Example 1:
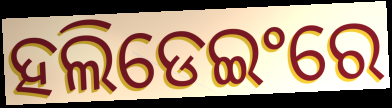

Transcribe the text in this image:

ହଲିଡେଇଂରେ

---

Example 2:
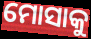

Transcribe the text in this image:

ମୋସାକୁ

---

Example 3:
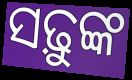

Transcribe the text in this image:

ସଢ଼ୁଙ୍କ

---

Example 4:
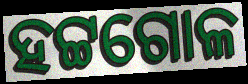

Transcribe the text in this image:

ହଟ୍ଟଗୋଳ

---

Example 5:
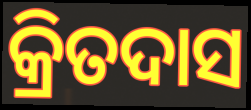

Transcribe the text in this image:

କ୍ରିତଦାସ